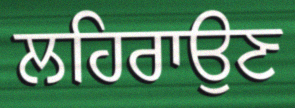
ਲਹਿਰਾਉਣ